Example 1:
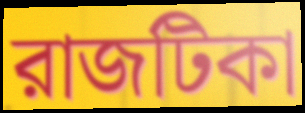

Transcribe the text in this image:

রাজটিকা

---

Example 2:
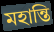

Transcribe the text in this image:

মহান্তি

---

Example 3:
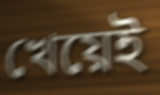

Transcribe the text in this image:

খেয়েই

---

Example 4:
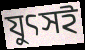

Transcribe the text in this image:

যুৎসই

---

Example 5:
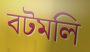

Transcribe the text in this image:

বটমলি